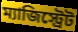
ম্যাজিস্ট্রেট